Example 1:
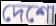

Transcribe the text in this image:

দেশো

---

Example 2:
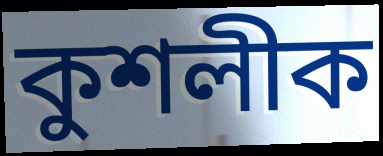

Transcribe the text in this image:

কুশলীক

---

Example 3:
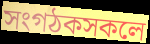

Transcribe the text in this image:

সংগঠকসকলে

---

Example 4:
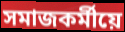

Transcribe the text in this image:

সমাজকৰ্মীয়ে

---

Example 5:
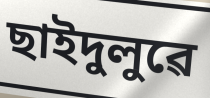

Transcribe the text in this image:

ছাইদুলুৱে